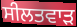
ਸੀਲਤਵਾੜ